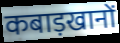
कबाड़खानों